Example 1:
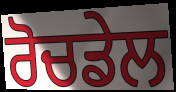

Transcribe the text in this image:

ਰੋਚਡੇਲ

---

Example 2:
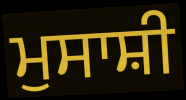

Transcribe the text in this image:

ਮੁਸਾਸ਼ੀ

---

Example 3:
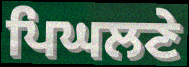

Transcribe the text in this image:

ਪਿਘਲਣੇ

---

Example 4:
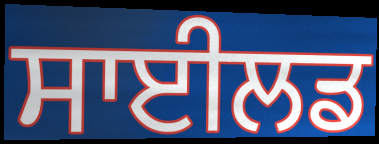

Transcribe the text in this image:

ਸਾਈਲਡ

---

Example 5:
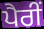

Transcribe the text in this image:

ਪੈਰੀਂ